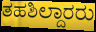
ತಹಶಿಲ್ದಾರರು